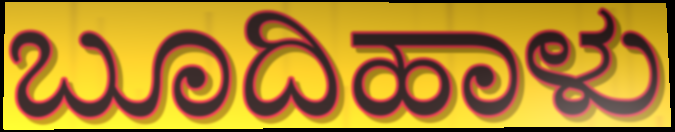
ಬೂದಿಹಾಳು